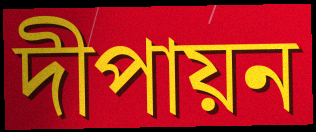
দীপায়ন